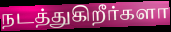
நடத்துகிறீர்களா